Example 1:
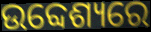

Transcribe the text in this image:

ଉବ୍ଦେଶ୍ୟରେ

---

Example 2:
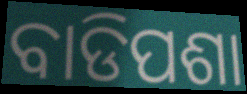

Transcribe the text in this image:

ବାଡିପଶା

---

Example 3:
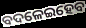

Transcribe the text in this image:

ବଦଳେଇହେବ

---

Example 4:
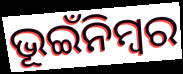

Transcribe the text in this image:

ଭୂଇଁନିମ୍ବର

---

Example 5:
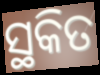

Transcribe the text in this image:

ସ୍ଥକିତ